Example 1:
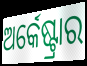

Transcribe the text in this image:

ଅର୍କେଷ୍ଟ୍ରାର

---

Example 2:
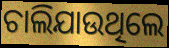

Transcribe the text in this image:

ଚାଲିଯାଉଥିଲେ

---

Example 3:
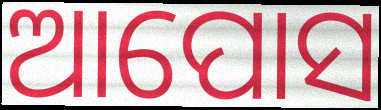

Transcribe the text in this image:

ଆପୋସ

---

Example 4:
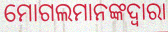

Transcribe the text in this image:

ମୋଗଲମାନଙ୍କଦ୍ୱାରା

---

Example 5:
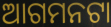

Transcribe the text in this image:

ଆଗମନଟା